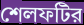
শেলফটির